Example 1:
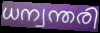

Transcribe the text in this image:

ധന്വന്തരി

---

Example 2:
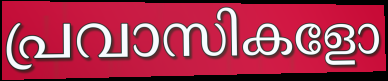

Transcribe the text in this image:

പ്രവാസികളോ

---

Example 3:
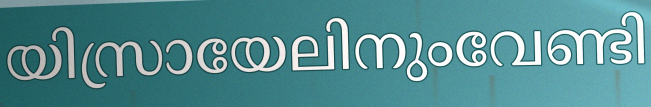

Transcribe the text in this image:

യിസ്രായേലിനുംവേണ്ടി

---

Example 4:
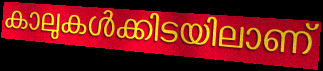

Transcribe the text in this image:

കാലുകൾക്കിടയിലാണ്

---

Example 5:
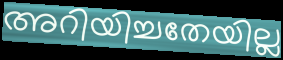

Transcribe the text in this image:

അറിയിച്ചതേയില്ല